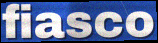
fiasco